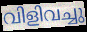
വിളിവച്ചു